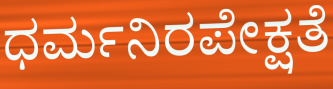
ಧರ್ಮನಿರಪೇಕ್ಷತೆ